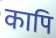
कापि